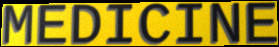
MEDICINE